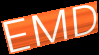
EMD